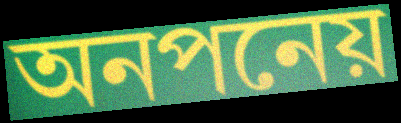
অনপনেয়